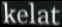
kelat